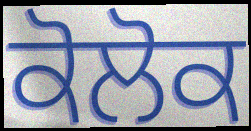
ਕੋਲੋਕ